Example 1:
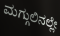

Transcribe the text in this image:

ಮಗ್ಗುಲಿನಲ್ಲೇ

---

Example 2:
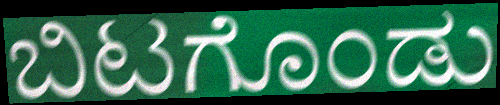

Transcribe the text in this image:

ಬಿಟಗೊಂಡು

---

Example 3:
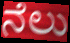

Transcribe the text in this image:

ನೆಲು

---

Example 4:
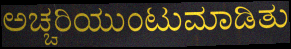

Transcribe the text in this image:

ಅಚ್ಚರಿಯುಂಟುಮಾಡಿತು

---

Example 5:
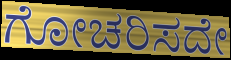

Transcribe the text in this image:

ಗೋಚರಿಸದೇ